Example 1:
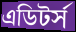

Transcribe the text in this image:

এডিটর্স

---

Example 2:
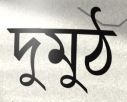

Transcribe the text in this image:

দুমুঠ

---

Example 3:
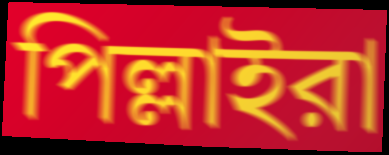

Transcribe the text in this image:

পিল্লাইরা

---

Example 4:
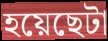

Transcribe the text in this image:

হয়েছেটা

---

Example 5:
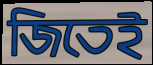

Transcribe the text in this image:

জিতেই